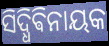
ସିଦ୍ଧିଵିନାୟକ